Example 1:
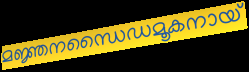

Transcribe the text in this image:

മജ്ഞനന്ധൈഡമൂകനായ്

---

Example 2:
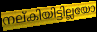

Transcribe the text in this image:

നല്കിയിട്ടില്ലയോ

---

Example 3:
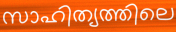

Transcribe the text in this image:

സാഹിത്യത്തിലെ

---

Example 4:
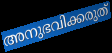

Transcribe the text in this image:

അനുഭവിക്കരുത്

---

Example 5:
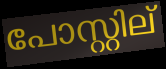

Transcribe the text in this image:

പോസ്റ്റില്